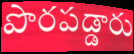
పొరపడ్డారు